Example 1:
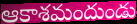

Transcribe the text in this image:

ఆకాశమందుండు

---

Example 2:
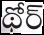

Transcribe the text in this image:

థోర్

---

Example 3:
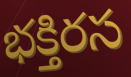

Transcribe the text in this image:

భక్తిరస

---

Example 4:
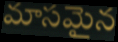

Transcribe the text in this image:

మాసమైన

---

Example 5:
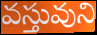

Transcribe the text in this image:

వస్తువుని